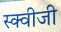
स्क्वीजी